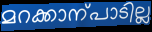
മറക്കാന്പാടില്ല